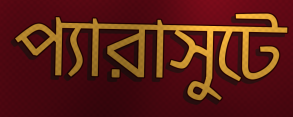
প্যারাসুটে